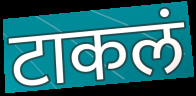
टाकलं